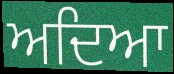
ਅਦਿਆ